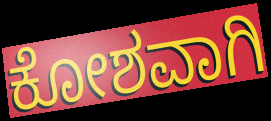
ಕೋಶವಾಗಿ